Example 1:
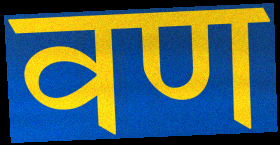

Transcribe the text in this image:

वण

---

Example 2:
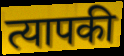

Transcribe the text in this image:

त्यापकी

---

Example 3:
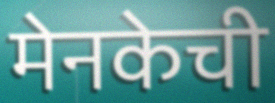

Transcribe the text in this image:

मेनकेची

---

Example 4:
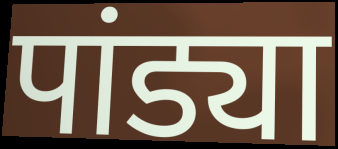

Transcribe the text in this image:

पांड्या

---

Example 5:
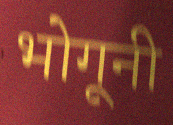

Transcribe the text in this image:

भोगूनी